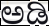
ಅಡಿ